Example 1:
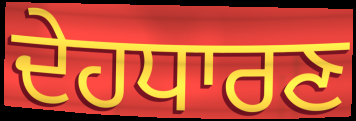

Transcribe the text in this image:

ਦੇਹਧਾਰਣ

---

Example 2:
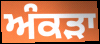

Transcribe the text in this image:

ਅੰਕੜਾ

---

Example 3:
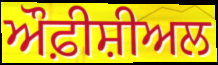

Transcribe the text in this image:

ਔਫ਼ੀਸ਼ੀਅਲ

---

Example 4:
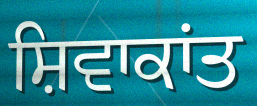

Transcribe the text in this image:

ਸ਼ਿਵਾਕਾਂਤ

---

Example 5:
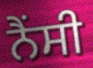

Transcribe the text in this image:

ਨੈਂਸੀ